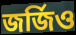
জর্জিও